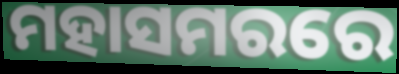
ମହାସମରରେ